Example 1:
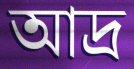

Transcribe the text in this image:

আদ্র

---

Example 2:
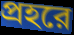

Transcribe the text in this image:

প্রহরে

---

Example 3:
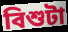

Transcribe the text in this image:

বিশুটা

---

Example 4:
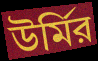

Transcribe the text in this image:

উর্মির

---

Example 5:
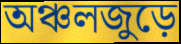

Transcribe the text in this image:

অঞ্চলজুড়ে